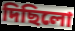
দিছিলো